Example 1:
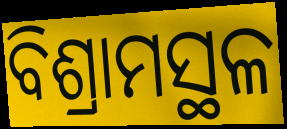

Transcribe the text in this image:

ବିଶ୍ରାମସ୍ଥଳ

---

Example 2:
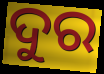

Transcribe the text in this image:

ଦୁର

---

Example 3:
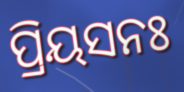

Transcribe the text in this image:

ପ୍ରିୟସନଃ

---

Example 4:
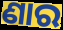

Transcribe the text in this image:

ଣାର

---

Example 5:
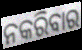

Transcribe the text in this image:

ନକରିବାର